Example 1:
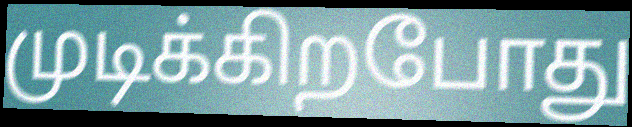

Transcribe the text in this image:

முடிக்கிறபோது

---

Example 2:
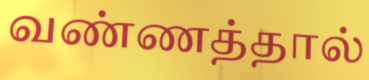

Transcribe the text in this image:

வண்ணத்தால்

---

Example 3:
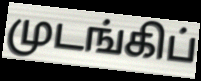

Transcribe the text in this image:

முடங்கிப்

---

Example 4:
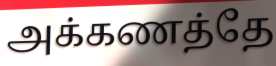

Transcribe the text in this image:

அக்கணத்தே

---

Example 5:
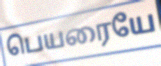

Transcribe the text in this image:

பெயரையே